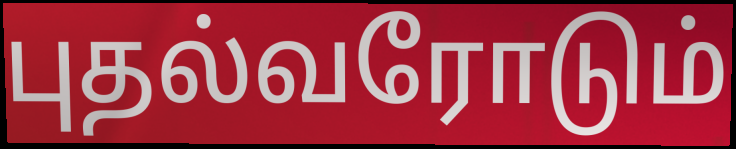
புதல்வரோடும்